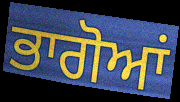
ਭਾਗੋਆਂ